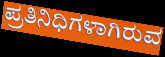
ಪ್ರತಿನಿಧಿಗಳಾಗಿರುವ